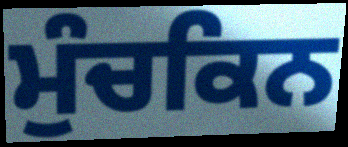
ਮੁੰਚਕਿਨ